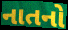
નાતનો